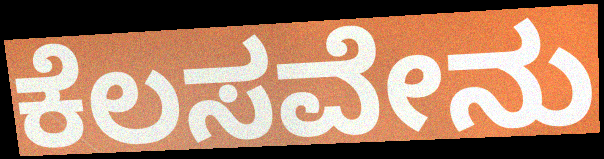
ಕೆಲಸವೇನು